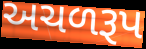
અચળરૂપ